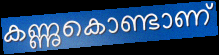
കണ്ണുകൊണ്ടാണ്